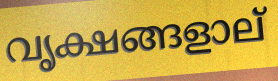
വൃക്ഷങ്ങളാല്